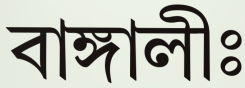
বাঙ্গালীঃ